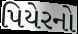
પિયેરનો